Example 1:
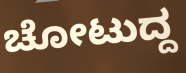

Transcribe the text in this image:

ಚೋಟುದ್ದ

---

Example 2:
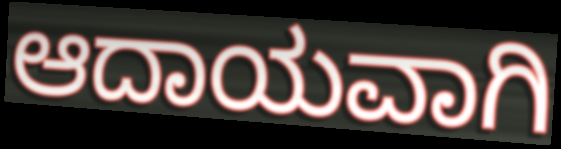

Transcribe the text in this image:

ಆದಾಯವಾಗಿ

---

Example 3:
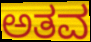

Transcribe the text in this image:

ಅತವ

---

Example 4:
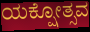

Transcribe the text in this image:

ಯಕ್ಷೋತ್ಸವ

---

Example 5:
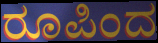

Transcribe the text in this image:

ರೂಪಿಂದ